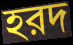
হরদ